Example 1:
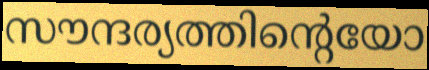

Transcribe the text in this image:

സൗന്ദര്യത്തിന്റെയോ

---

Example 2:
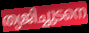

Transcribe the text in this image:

ത്യജിച്ചുടനെ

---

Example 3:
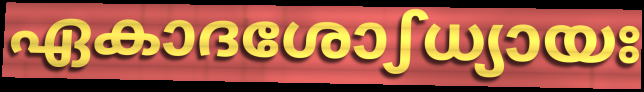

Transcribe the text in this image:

ഏകാദശോഽധ്യായഃ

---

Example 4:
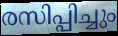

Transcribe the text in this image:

രസിപ്പിച്ചും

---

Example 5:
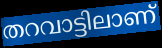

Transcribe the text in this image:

തറവാട്ടിലാണ്